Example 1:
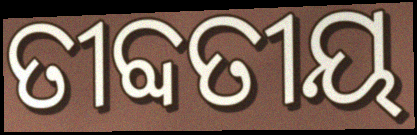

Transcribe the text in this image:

ତୀବ୍ଦତୀୟ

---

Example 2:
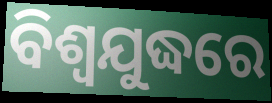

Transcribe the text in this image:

ବିଶ୍ଵଯୁଦ୍ଧରେ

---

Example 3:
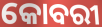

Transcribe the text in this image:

କୋବରୀ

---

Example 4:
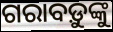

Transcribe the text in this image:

ଗରାବଡ଼ୁଙ୍କୁ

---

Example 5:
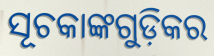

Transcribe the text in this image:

ସୂଚକାଙ୍କଗୁଡ଼ିକର